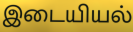
இடையியல்